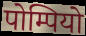
पोम्पियो